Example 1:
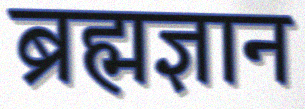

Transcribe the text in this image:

ब्रह्मज्ञान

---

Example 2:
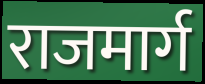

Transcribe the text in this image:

राजमार्ग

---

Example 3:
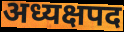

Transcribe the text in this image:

अध्यक्षपद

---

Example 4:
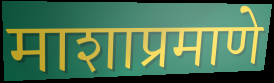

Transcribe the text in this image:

माशाप्रमाणे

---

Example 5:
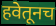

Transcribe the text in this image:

हवेतूनच